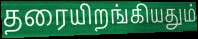
தரையிறங்கியதும்